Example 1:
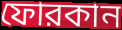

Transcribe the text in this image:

ফোরকান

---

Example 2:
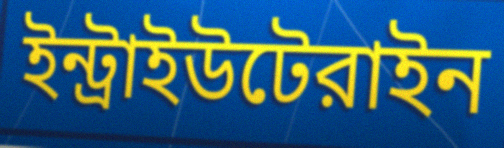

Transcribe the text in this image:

ইন্ট্রাইউটেরাইন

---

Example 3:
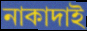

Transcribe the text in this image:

নাকাদাই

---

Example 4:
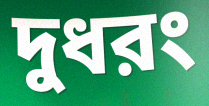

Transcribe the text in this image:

দুধরং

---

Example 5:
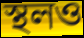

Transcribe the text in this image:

স্থলও